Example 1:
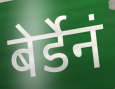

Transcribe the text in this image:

बेर्डेनं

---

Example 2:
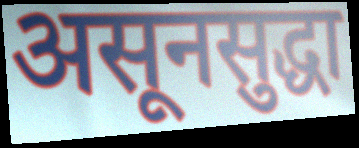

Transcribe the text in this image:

असूनसुद्धा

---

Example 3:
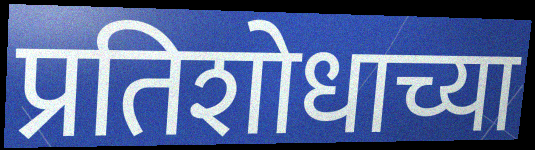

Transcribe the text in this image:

प्रतिशोधाच्या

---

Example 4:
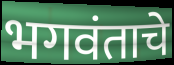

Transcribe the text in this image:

भगवंताचे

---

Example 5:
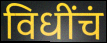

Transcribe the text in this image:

विधींचं